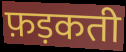
फ़ड़कती